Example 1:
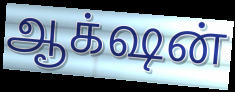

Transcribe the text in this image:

ஆக்‌ஷன்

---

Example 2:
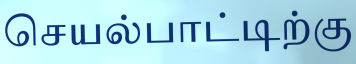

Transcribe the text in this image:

செயல்பாட்டிற்கு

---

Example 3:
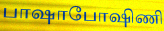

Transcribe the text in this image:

பாஷாபோஷிணி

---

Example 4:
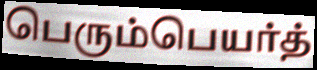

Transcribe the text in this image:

பெரும்பெயர்த்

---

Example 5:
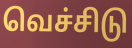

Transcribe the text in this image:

வெச்சிடு